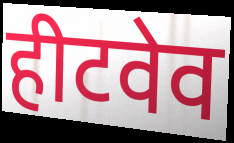
हीटवेव